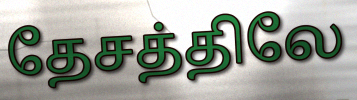
தேசத்திலே